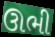
ઊભી